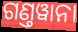
ଗଣ୍ତୱାନା